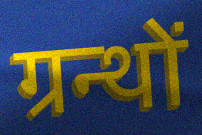
ग्रन्थों